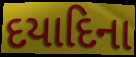
દયાદિના